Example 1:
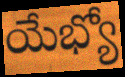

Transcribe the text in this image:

యేభ్యో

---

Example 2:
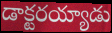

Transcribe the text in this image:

డాక్టరయ్యాడు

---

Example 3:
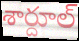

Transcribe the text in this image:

శార్దూల్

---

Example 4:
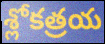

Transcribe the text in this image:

శ్లోకత్రయ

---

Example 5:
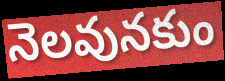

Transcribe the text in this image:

నెలవునకుం